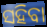
ସହିବା